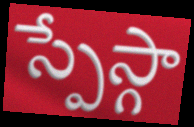
స్పేస్గా